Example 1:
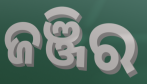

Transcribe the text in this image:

ଜଞ୍ଜିର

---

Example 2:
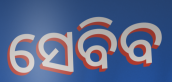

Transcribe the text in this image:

ସେବିବ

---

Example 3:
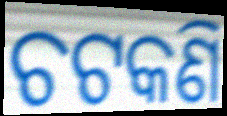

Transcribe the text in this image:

ଚଟକଣି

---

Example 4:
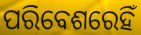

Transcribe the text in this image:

ପରିବେଶରେହିଁ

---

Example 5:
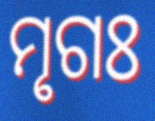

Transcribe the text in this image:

ମୃଗଃ